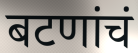
बटणांचं